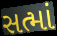
સત્માં